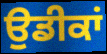
ਉਡੀਕਾਂ